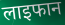
लाइफान